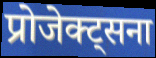
प्रोजेक्ट्सना